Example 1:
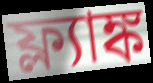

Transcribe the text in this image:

ফ্ল্যাঙ্ক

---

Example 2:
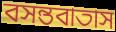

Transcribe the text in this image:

বসন্তবাতাস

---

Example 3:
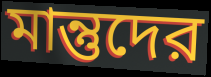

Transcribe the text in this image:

মান্তুদের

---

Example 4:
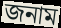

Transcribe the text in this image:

জনাম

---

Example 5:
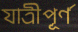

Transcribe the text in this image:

যাত্রীপূর্ণ